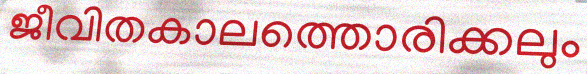
ജീവിതകാലത്തൊരിക്കലും